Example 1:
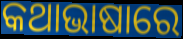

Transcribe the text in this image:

କଥାଭାଷାରେ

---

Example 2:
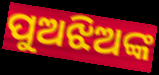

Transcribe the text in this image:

ପୁଅଝିଅଙ୍କ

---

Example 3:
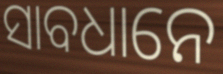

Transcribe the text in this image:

ସାବଧାନେ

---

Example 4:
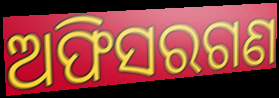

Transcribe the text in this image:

ଅଫିସରଗଣ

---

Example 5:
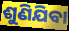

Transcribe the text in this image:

ଶୁଣିଯିବା